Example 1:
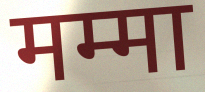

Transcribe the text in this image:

मम्मा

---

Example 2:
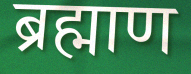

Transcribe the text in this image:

ब्रह्माण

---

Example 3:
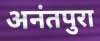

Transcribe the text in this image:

अनंतपुरा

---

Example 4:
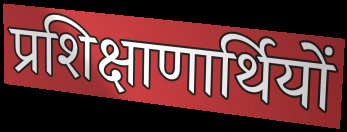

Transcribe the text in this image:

प्रशिक्षाणार्थियों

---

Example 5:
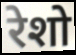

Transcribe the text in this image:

रेशो